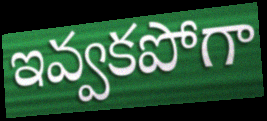
ఇవ్వకపోగా